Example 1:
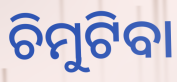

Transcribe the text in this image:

ଚିମୁଟିବା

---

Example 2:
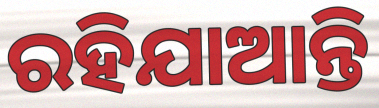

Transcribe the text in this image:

ରହିଯାଆନ୍ତି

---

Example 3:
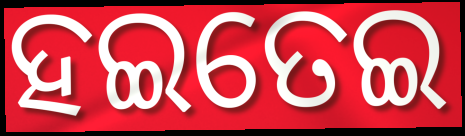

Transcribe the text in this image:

ହଇତେଇ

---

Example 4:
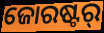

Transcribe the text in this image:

ଜୋରଷ୍ଟର୍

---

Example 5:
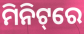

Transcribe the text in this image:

ମିନିଟ୍‌ରେ